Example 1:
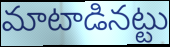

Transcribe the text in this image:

మాటాడినట్టు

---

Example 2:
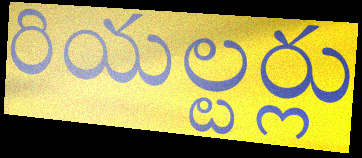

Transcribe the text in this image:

రియల్టర్లు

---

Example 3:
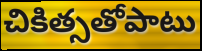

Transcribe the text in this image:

చికిత్సతోపాటు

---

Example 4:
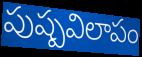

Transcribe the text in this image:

పుష్పవిలాపం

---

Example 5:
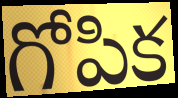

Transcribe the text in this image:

గోపిక